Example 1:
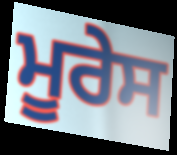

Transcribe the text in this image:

ਮੂਰੇਸ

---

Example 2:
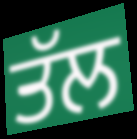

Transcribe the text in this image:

ਤੱਲ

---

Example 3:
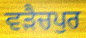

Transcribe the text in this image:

ਵੜੈਚਪੁਰ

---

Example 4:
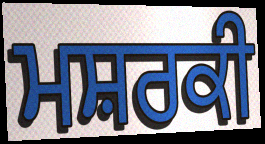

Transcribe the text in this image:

ਮਸ਼ਰਕੀ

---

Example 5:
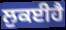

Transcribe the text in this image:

ਲੁਕਈਹੈ